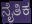
ನೈತಿಕ